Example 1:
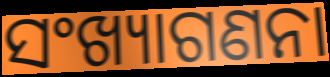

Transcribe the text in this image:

ସଂଖ୍ୟାଗଣନା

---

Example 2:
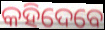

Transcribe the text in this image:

କହିଦେବେ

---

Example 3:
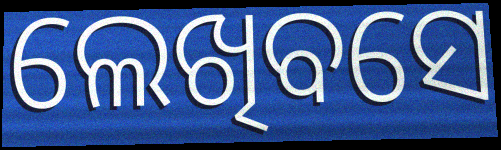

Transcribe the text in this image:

ଲେଖିବସେ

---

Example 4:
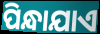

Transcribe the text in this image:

ପିନ୍ଧାଯାଏ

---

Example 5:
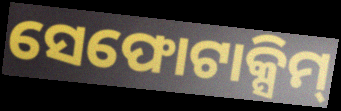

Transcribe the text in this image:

ସେଫୋଟାକ୍ସିମ୍